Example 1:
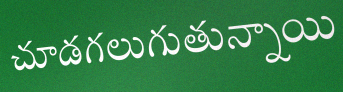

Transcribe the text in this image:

చూడగలుగుతున్నాయి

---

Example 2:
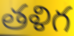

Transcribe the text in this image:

తళిగ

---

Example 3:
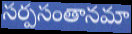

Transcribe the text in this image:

సర్పసంతానమా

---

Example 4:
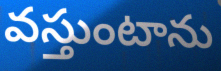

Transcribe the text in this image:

వస్తుంటాను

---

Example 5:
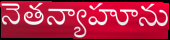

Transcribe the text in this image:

నెతన్యాహూను